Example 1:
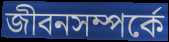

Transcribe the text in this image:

জীবনসম্পর্কে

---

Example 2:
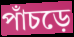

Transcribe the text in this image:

পাঁচড়ে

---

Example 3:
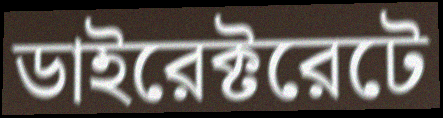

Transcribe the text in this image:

ডাইরেক্টরেটে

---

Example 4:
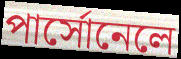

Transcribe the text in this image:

পার্সোনেলে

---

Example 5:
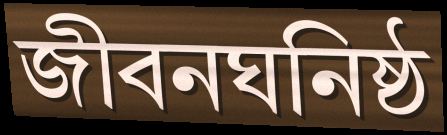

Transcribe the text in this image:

জীবনঘনিষ্ঠ